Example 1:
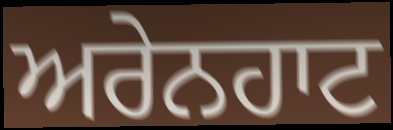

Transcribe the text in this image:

ਅਰੇਨਹਾਟ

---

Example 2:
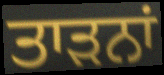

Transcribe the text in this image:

ਤਾੜਨਾਂ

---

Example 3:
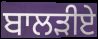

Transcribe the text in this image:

ਬਾਲੜੀਏ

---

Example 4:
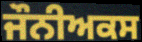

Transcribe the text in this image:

ਜੌਨੀਅਕਸ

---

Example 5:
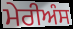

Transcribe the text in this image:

ਮੇਰੀਅੰਸ